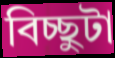
বিচ্ছুটা